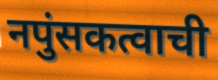
नपुंसकत्वाची